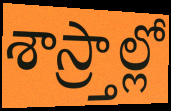
శాస్ర్తాల్లో